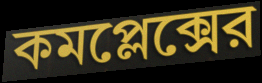
কমপ্লেক্সের